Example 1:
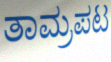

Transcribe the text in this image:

ತಾಮ್ರಪಟ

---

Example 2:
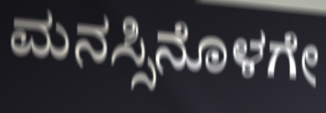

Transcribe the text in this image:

ಮನಸ್ಸಿನೊಳಗೇ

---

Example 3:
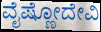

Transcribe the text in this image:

ವೈಷ್ಣೋದೇವಿ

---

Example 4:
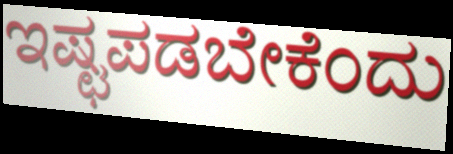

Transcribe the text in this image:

ಇಷ್ಟಪಡಬೇಕೆಂದು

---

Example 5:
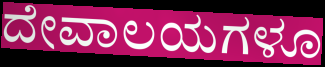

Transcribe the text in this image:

ದೇವಾಲಯಗಳೂ